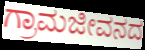
ಗ್ರಾಮಜೀವನದ